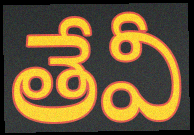
తేవీ